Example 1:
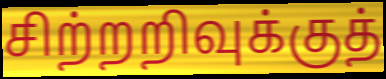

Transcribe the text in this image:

சிற்றறிவுக்குத்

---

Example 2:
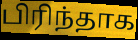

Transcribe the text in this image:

பிரிந்தாக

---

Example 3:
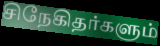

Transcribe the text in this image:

சிநேகிதர்களும்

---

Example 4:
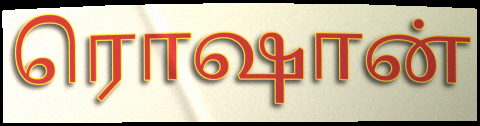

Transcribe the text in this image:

ரொஷான்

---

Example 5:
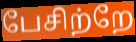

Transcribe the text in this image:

பேசிற்றே